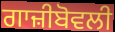
ਗਾਜ਼ੀਬੋਵਲੀ